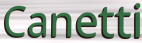
Canetti